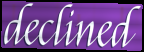
declined